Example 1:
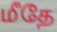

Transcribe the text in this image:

மீதே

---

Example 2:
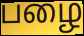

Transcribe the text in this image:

பழை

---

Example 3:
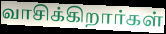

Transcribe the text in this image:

வாசிக்கிறார்கள்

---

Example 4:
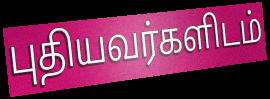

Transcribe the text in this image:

புதியவர்களிடம்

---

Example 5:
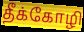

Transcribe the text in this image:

தீக்கோழி